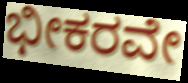
ಭೀಕರವೇ